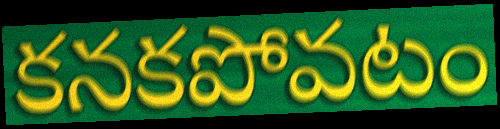
కనకపోవటం